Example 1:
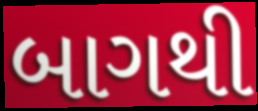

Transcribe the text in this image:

બાગથી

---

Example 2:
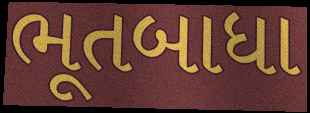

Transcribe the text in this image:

ભૂતબાધા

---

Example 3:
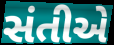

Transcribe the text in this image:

સંતીએ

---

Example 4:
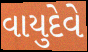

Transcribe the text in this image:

વાયુદેવે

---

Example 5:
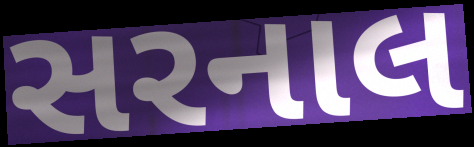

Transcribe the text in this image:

સરનાલ